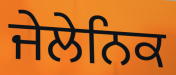
ਜੇਲੇਨਿਕ